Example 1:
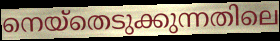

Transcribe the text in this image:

നെയ്തെടുക്കുന്നതിലെ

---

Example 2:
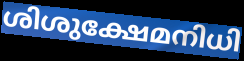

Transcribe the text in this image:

ശിശുക്ഷേമനിധി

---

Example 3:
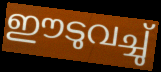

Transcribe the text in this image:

ഈടുവച്ചു്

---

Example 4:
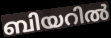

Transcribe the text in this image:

ബിയറിൽ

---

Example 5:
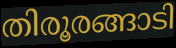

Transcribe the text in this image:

തിരൂരങ്ങാടി